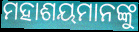
ମହାଶୟମାନଙ୍କୁ